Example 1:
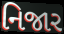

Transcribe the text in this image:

નિજાર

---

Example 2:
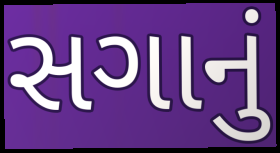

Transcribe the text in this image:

સગાનું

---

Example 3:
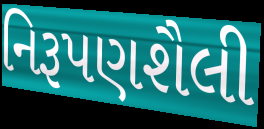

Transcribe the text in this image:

નિરૂપણશૈલી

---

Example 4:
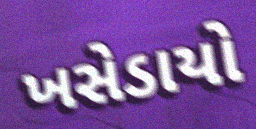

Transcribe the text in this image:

ખસેડાયો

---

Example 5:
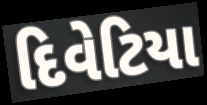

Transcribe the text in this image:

દિવેટિયા